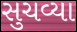
સુચવ્યા